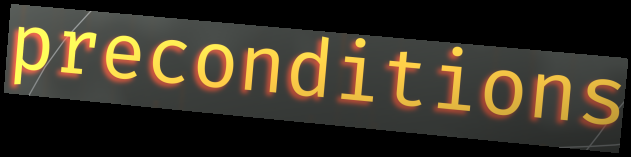
preconditions